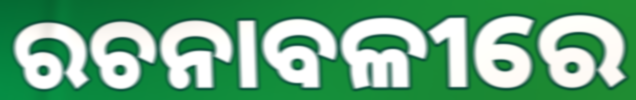
ରଚନାବଳୀରେ